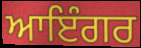
ਆਇੰਗਰ